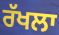
ਰੱਖਲਾ